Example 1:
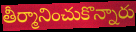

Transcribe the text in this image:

తీర్మానించుకొన్నారు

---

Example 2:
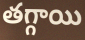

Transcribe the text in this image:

తగ్గాయి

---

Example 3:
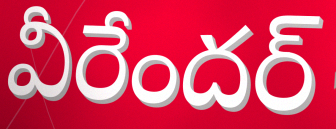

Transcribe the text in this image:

వీరేందర్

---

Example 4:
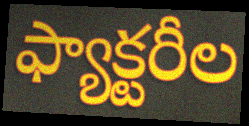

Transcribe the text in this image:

ఫ్యాక్టరీల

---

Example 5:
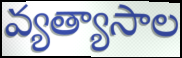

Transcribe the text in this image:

వ్యత్యాసాల